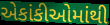
એકાંકીઓમાંથી